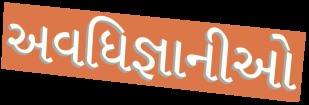
અવધિજ્ઞાનીઓ